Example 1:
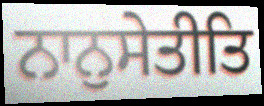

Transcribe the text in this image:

ਨਾਨੁਸੇਤੀਤਿ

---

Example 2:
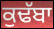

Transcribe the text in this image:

ਕੁਢੱਬਾ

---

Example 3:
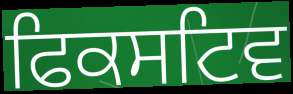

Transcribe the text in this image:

ਫਿਕਸਟਿਵ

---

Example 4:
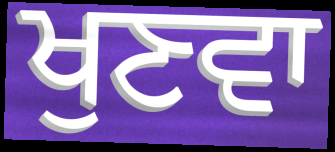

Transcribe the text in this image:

ਖੁਣਵਾ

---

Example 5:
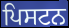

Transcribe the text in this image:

ਪਿਸਟਨ